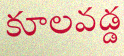
కూలవడ్డ